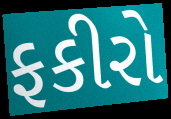
ફકીરો